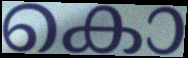
കൊ